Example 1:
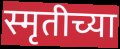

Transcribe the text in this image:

स्मृतीच्या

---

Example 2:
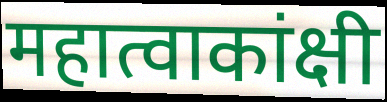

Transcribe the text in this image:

महात्वाकांक्षी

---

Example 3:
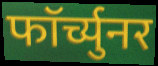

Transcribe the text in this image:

फॉर्च्युनर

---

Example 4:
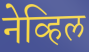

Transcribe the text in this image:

नेव्हिल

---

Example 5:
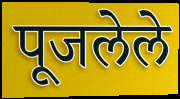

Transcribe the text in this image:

पूजलेले